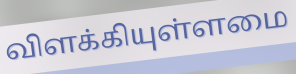
விளக்கியுள்ளமை